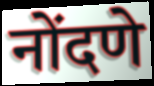
नोंदणे